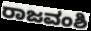
ರಾಜವಂಶಿ